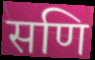
सणि